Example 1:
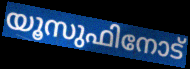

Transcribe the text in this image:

യൂസുഫിനോട്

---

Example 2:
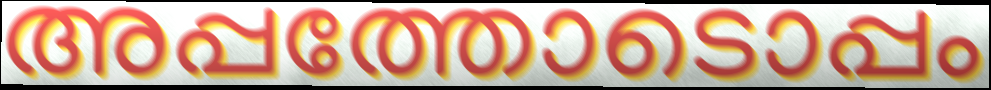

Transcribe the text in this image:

അപ്പത്തോടൊപ്പം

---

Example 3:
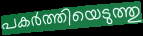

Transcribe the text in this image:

പകർത്തിയെടുത്തു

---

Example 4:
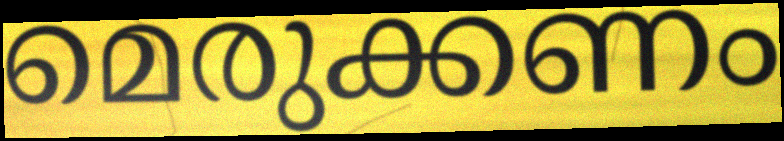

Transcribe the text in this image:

മെരുക്കണം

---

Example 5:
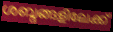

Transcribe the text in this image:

ശബ്ദങ്ങളിലേക്ക്